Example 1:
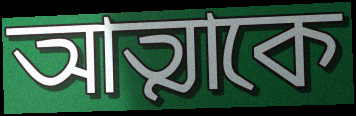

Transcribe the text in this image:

আত্মাকে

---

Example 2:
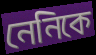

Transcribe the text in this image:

নেনিকে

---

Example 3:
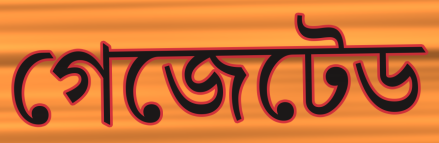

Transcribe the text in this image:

গেজেটেড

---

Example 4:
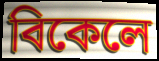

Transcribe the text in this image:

বিকেলে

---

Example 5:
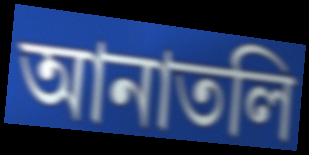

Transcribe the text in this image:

আনাতলি